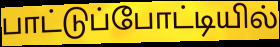
பாட்டுப்போட்டியில்